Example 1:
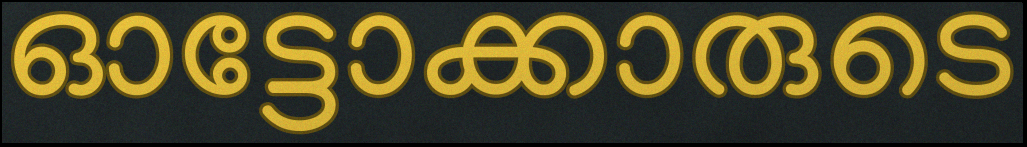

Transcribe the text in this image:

ഓട്ടോക്കാരുടെ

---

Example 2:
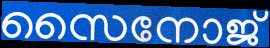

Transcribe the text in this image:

സൈനോജ്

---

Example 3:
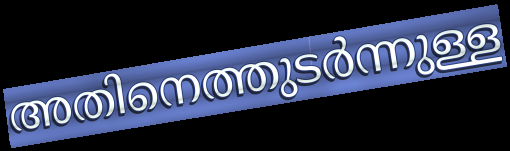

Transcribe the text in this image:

അതിനെത്തുടർന്നുള്ള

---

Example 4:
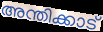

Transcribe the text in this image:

അന്തിക്കാട്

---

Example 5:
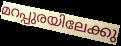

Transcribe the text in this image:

മറപ്പുരയിലേക്കു